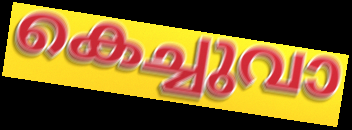
കെച്ചുവാ